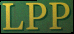
LPP